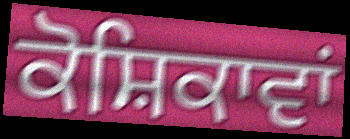
ਕੋਸ਼ਿਕਾਵਾਂ